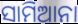
ସାମିଆନା